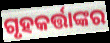
ଗୃହକର୍ତ୍ତାଙ୍କର